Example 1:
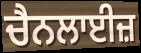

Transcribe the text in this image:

ਚੈਨਲਾਈਜ਼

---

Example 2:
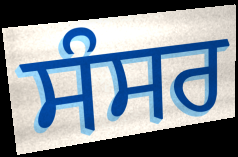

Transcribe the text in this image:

ਸੰਸਰ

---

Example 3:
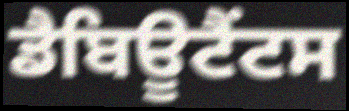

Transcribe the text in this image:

ਡੈਬਿਊਟੈਂਟਸ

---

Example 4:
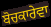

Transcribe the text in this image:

ਬੋਚਕਾਰੇਵਾ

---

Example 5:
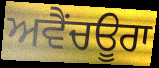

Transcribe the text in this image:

ਅਵੈਂਚਊਰਾ